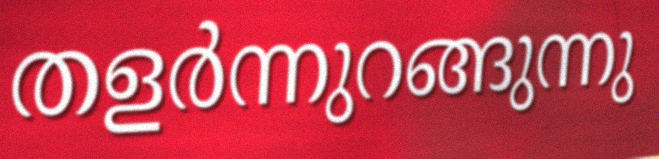
തളർന്നുറങ്ങുന്നു